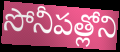
సోనీపత్లోని